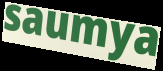
saumya